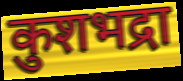
कुशभद्रा